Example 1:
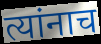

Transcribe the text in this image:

त्यांनाच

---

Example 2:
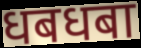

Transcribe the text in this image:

धबधबा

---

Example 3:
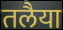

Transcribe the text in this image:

तलैया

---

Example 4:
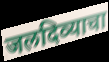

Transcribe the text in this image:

जलदिव्याचा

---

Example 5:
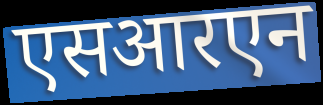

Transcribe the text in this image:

एसआरएन